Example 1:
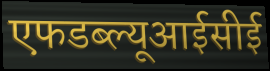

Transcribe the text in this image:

एफडब्ल्यूआईसीई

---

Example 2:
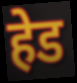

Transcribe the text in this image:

हेड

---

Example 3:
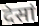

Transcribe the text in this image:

देसां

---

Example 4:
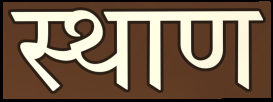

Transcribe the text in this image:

स्थाण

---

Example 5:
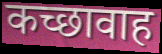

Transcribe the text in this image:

कच्छावाह